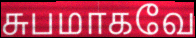
சுபமாகவே